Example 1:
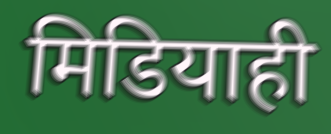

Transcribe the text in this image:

मिडियाही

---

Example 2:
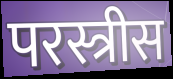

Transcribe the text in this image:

परस्त्रीस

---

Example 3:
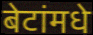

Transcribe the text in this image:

बेटांमधे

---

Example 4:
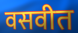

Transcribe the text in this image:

वसवीत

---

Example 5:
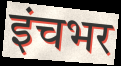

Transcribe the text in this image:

इंचभर